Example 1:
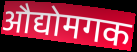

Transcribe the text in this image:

औद्योमगक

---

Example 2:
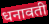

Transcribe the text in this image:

धनावती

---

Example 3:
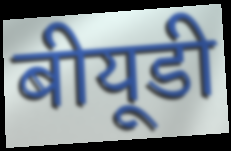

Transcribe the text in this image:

बीयूडी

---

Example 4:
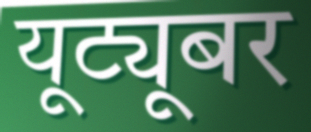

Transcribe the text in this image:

यूट्यूबर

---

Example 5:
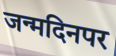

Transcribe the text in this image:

जन्मदिनपर